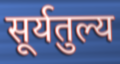
सूर्यतुल्य